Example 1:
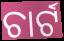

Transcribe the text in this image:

ଚାର୍ଟ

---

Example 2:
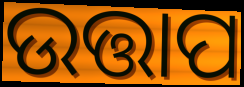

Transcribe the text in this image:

ଉତ୍ତାପ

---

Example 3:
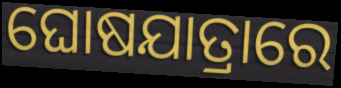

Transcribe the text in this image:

ଘୋଷଯାତ୍ରାରେ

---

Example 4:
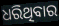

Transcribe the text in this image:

ଧରିଥିବାର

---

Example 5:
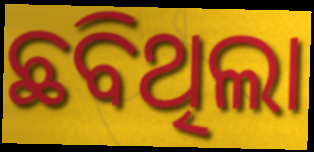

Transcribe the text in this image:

ଛବିଥିଲା